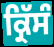
ਕ੍ਰਿੱਸੰ